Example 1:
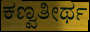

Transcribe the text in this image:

ಕಣ್ವತೀರ್ಥ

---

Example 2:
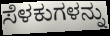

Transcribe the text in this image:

ಸೆಳಕುಗಳನ್ನು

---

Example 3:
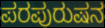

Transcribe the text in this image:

ಪರಪುರುಷನ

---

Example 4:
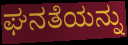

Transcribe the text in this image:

ಘನತೆಯನ್ನು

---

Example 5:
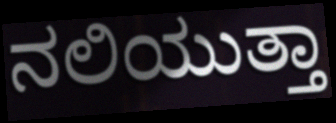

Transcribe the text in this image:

ನಲಿಯುತ್ತಾ